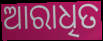
ଆରାଧିତ